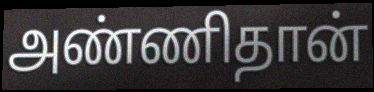
அண்ணிதான்